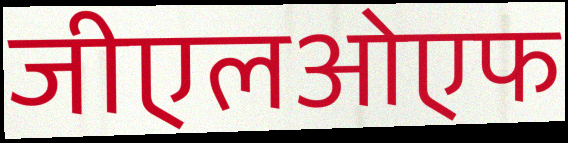
जीएलओएफ